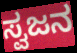
ಸ್ವಜನ